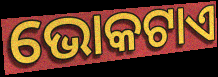
ଭୋକଟାଏ